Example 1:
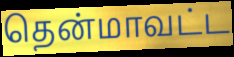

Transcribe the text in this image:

தென்மாவட்ட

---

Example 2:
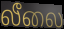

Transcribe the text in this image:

லீலை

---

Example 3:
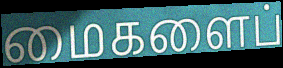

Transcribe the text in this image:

மைகளைப்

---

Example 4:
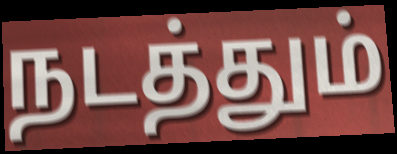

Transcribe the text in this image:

நடத்தும்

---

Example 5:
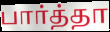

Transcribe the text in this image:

பார்த்தா